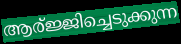
ആര്ജ്ജിച്ചെടുക്കുന്ന